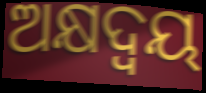
ଅକ୍ଷଦ୍ବୟ